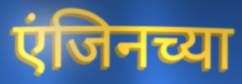
एंजिनच्या